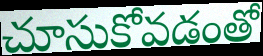
చూసుకోవడంతో